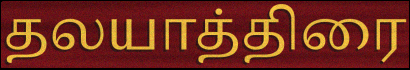
தலயாத்திரை